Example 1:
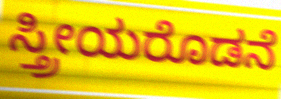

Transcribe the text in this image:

ಸ್ತ್ರೀಯರೊಡನೆ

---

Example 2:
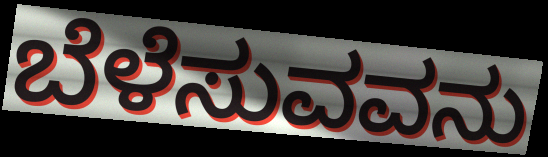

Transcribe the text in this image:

ಬೆಳೆಸುವವನು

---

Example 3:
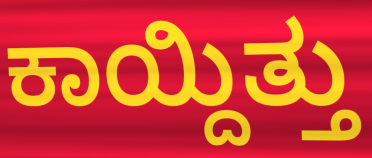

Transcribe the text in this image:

ಕಾಯ್ದಿತ್ತು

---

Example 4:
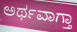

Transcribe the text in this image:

ಅರ್ಥವಾಗ್ತಾ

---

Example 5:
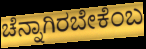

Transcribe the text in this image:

ಚೆನ್ನಾಗಿರಬೇಕೆಂಬ